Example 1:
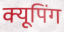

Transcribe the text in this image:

क्यूपिंग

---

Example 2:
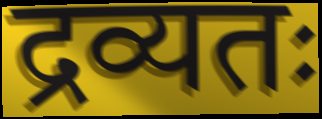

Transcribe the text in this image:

द्रव्यतः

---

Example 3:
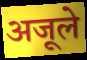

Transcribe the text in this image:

अजूले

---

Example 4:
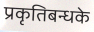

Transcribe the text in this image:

प्रकृतिबन्धके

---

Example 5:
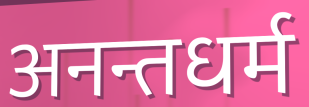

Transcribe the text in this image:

अनन्तधर्म